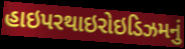
હાઇપરથાઇરોઇડિઝમનું